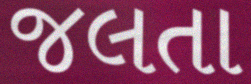
જલતા